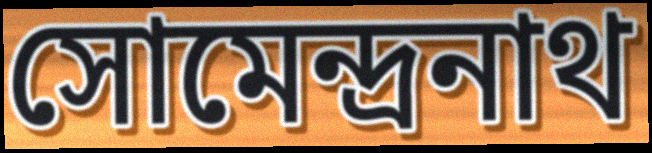
সোমেন্দ্রনাথ